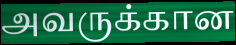
அவருக்கான